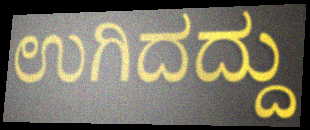
ಉಗಿದದ್ದು